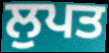
ਲੁਪਤ